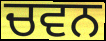
ਚਵਨ